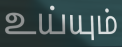
உய்யும்